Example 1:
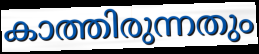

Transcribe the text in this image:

കാത്തിരുന്നതും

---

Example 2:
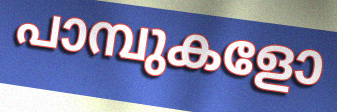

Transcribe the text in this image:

പാമ്പുകളോ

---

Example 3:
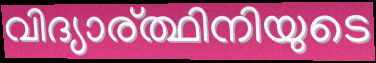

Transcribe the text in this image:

വിദ്യാര്ത്ഥിനിയുടെ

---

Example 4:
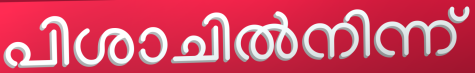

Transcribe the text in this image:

പിശാചിൽനിന്ന്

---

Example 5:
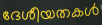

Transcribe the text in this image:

ദേശീയതകൾ